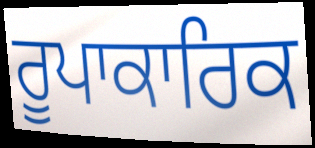
ਰੂਪਾਕਾਰਿਕ